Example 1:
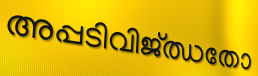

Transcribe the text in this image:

അപ്പടിവിജ്ഝതോ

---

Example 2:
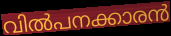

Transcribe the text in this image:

വിൽപനക്കാരൻ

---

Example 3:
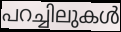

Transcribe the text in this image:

പറച്ചിലുകൾ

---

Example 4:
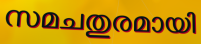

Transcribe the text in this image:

സമചതുരമായി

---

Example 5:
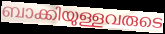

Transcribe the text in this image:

ബാക്കിയുള്ളവരുടെ